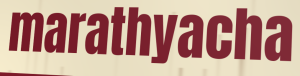
marathyacha